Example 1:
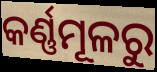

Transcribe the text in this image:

କର୍ଣ୍ଣମୂଳରୁ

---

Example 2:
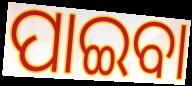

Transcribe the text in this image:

ପାଇବା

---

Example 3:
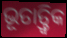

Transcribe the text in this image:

ଭୂତାତ୍ତ୍ୱିକ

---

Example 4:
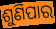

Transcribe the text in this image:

ଶୁଣିପାର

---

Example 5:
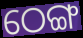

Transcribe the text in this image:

ଠେଙ୍ଗ